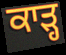
ਕਾੜ੍ਹ